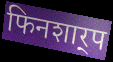
फिनशार्प